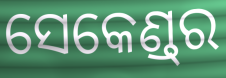
ସେକେଣ୍ଡ୍‌ର